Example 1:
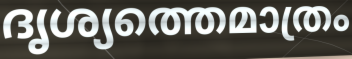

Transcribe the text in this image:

ദൃശ്യത്തെമാത്രം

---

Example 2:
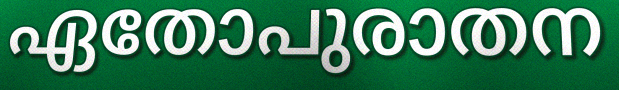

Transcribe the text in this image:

ഏതോപുരാതന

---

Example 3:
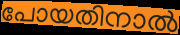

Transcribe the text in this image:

പോയതിനാൽ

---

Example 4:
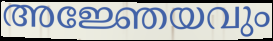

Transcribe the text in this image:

അജ്ഞേയവും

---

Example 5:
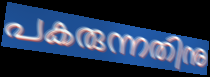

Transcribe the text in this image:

പകരുന്നതിനു